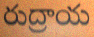
రుద్రాయ